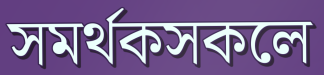
সমৰ্থকসকলে